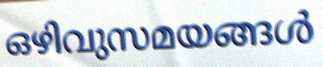
ഒഴിവുസമയങ്ങൾ